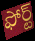
ఫోర్ట్